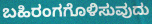
ಬಹಿರಂಗಗೊಳಿಸುವುದು